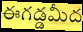
ఈగడ్డమీద